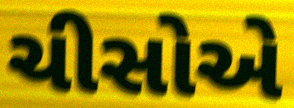
ચીસોએ